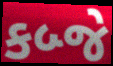
કબ્જે